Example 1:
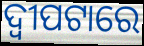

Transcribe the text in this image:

ଦ୍ୱୀପଟାରେ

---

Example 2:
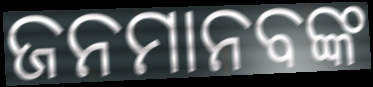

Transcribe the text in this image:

ଜନମାନବଙ୍କ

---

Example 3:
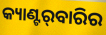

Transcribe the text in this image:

କ୍ୟାଣ୍ଟର୍‌ବାରିର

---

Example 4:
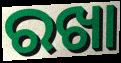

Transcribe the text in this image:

ରଖା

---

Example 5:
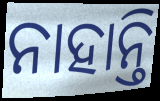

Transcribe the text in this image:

ନାହାନ୍ତି